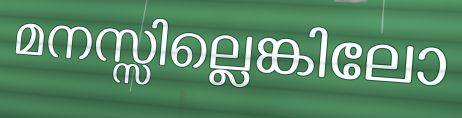
മനസ്സില്ലെങ്കിലോ